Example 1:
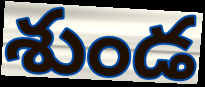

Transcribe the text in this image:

శుండ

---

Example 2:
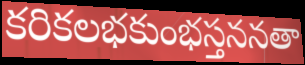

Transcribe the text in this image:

కరికలభకుంభస్తననతా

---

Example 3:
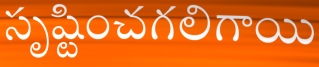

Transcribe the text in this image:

సృష్టించగలిగాయి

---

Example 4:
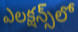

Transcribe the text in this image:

ఎలక్షన్స్‌లో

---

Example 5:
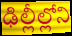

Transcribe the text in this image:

ఢిల్లీల్లోని